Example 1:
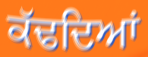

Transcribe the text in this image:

ਕੱਢਦਿਆਂ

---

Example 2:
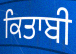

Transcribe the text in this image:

ਕਿਤਾਬੀ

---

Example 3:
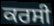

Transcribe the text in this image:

ਕਰਸੀ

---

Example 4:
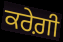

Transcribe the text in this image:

ਕਰੇਗ਼ੀ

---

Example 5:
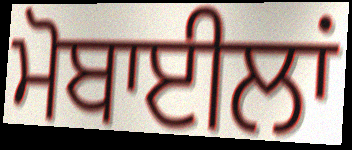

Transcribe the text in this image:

ਮੋਬਾਈਲਾਂ